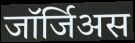
जॉर्जिअस